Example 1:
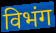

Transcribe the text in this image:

विभंग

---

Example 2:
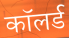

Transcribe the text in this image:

कॉलर्ड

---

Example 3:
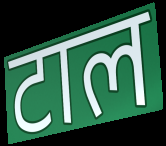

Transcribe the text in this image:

टाल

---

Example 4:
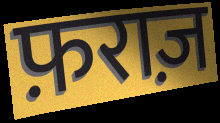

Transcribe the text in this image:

फ़राज़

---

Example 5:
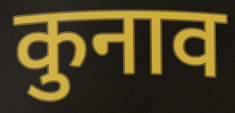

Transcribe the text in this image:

कुनाव